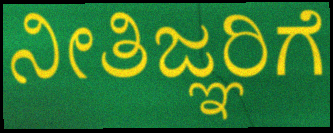
ನೀತಿಜ್ಞರಿಗೆ